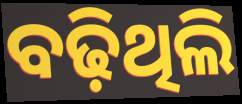
ବଢ଼ିଥିଲି